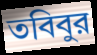
তবিবুর